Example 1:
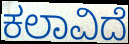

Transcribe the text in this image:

ಕಲಾವಿದೆ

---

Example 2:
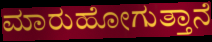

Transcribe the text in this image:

ಮಾರುಹೋಗುತ್ತಾನೆ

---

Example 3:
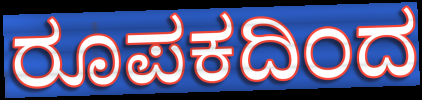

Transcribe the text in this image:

ರೂಪಕದಿಂದ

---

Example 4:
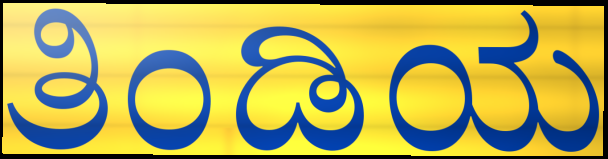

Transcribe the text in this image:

ತಿಂಡಿಯ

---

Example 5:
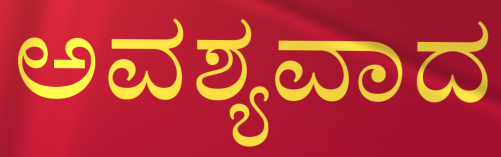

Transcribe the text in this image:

ಅವಶ್ಯವಾದ